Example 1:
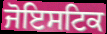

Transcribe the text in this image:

ਜੋਇਸਟਿਕ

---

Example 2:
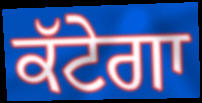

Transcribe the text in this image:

ਕੱਟੇਗਾ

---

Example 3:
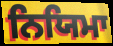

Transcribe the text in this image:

ਨਿਯਿਮਾ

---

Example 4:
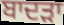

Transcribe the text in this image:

ਬਾਦੜਾ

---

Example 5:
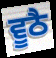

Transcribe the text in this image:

ਵੂਠੈ